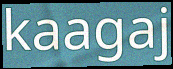
kaagaj